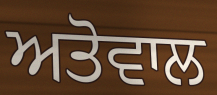
ਅਤੋਵਾਲ